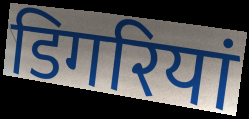
डिगरियां